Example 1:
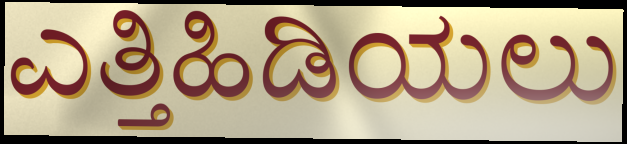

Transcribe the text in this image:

ಎತ್ತಿಹಿಡಿಯಲು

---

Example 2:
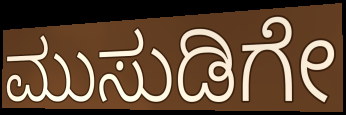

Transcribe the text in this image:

ಮುಸುಡಿಗೇ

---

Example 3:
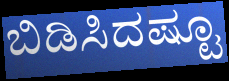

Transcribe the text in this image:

ಬಿಡಿಸಿದಷ್ಟೂ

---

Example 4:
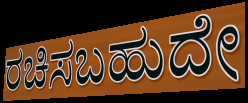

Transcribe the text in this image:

ರಚಿಸಬಹುದೇ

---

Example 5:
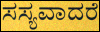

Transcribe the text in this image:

ಸಸ್ಯವಾದರೆ